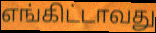
எங்கிட்டாவது